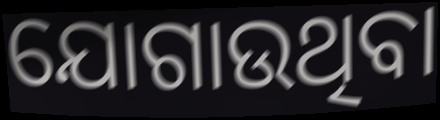
ଯୋଗାଉଥିବା